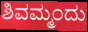
ಶಿವಮ್ಮಂದು